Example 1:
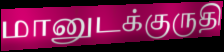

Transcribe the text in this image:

மானுடக்குருதி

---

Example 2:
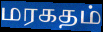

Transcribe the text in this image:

மரகதம்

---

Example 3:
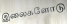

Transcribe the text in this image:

இலைகளோடு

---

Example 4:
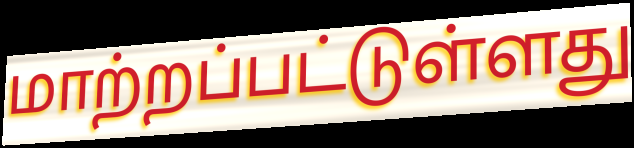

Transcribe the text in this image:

மாற்றப்பட்டுள்ளது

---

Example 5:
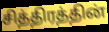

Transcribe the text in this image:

சித்திரத்தின்